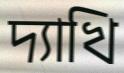
দ্যাখি